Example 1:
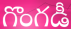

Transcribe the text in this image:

గొంగడీ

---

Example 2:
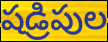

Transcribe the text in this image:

షడ్రిపుల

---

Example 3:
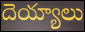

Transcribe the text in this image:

దెయ్యాలు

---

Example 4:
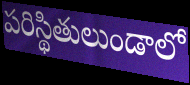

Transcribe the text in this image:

పరిస్థితులుండాలో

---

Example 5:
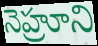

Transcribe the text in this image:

నెహ్రూని